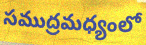
సముద్రమధ్యంలో